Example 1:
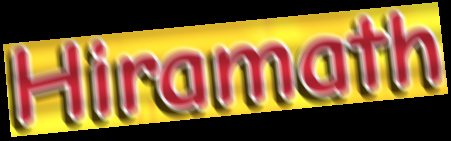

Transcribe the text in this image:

Hiramath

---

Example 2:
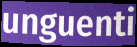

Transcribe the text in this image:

unguenti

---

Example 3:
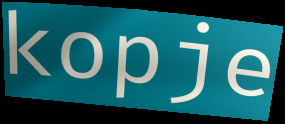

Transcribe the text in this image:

kopje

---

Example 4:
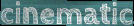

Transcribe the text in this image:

cinematic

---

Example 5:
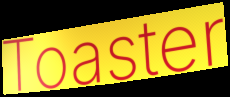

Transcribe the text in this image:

Toaster